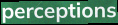
perceptions